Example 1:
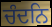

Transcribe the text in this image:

ਚੰਦਨਿ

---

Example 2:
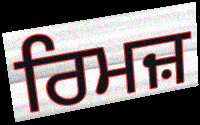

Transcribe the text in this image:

ਰਿਮਜ਼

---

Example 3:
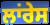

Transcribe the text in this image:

ਲਾਂਰੇਸ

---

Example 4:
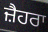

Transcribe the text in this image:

ਜ਼ੈਹਰਾ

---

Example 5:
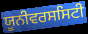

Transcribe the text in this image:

ਯੂਨੀਵਰਸਸਿਟੀ